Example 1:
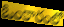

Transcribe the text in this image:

ఓంకారంలో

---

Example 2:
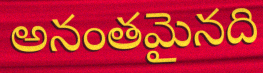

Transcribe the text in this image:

అనంతమైనది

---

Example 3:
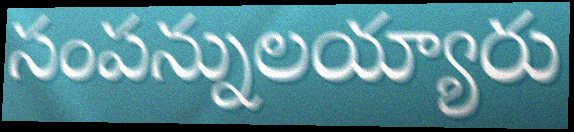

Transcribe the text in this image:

సంపన్నులయ్యారు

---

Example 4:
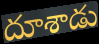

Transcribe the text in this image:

దూశాడు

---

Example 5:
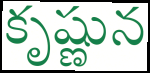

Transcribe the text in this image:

కృష్ణున